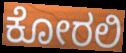
ಕೋರಲಿ